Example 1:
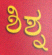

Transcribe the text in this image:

ಶಿಶ್ನ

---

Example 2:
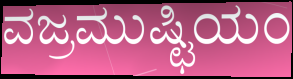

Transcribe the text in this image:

ವಜ್ರಮುಷ್ಟಿಯಂ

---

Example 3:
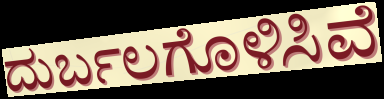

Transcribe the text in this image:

ದುರ್ಬಲಗೊಳಿಸಿವೆ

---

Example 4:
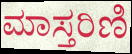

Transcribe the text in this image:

ಮಾಸ್ತರಿಣಿ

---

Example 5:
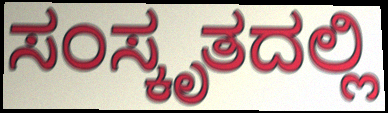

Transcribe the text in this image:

ಸಂಸ್ಕೃತದಲ್ಲಿ